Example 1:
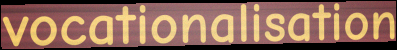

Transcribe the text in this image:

vocationalisation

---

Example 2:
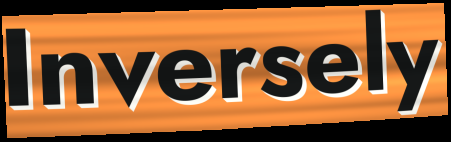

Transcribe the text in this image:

Inversely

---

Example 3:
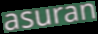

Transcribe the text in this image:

asuran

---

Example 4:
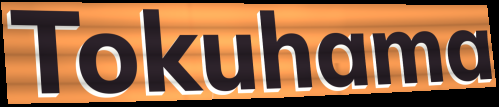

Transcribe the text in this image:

Tokuhama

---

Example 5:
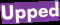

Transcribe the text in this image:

Upped